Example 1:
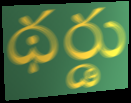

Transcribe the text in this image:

థర్డు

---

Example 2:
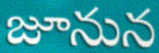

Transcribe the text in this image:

జూనున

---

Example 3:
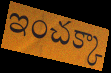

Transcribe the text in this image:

ఇంచక్కా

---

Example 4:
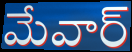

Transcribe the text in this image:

మేవార్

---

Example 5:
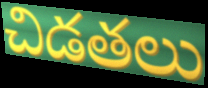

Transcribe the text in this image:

చిడతలు